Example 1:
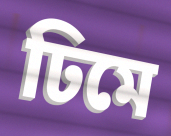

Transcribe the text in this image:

ঢিমে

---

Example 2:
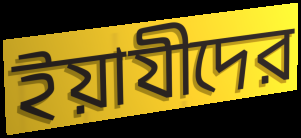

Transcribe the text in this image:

ইয়াযীদের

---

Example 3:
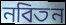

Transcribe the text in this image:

নবিতন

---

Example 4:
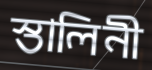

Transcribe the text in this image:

স্তালিনী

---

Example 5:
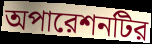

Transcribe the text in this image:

অপারেশনটির